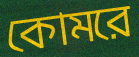
কোমরে